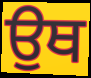
ਉਥ